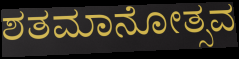
ಶತಮಾನೋತ್ಸವ